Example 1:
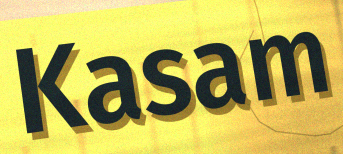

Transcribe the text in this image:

Kasam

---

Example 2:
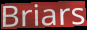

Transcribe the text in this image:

Briars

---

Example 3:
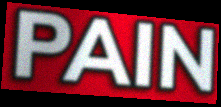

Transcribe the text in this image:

PAIN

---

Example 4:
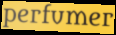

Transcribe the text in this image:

perfumer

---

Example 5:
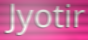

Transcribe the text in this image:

Jyotir